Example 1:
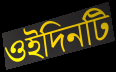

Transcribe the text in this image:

ওইদিনটি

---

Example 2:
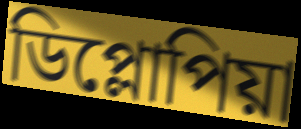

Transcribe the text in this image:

ডিপ্লোপিয়া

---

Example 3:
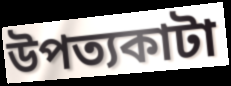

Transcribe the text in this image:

উপত্যকাটা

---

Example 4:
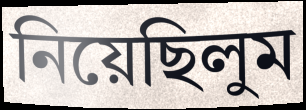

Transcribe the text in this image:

নিয়েছিলুম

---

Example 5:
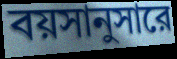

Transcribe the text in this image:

বয়সানুসারে